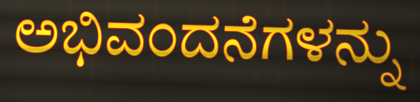
ಅಭಿವಂದನೆಗಳನ್ನು